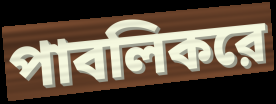
পাবলিকরে